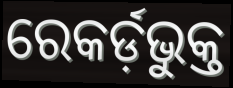
ରେକର୍ଡ଼ଭୁକ୍ତ